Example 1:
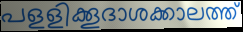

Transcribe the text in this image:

പളളിക്കൂദാശക്കാലത്ത്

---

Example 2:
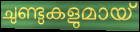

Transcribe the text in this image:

ചുണ്ടുകളുമായ്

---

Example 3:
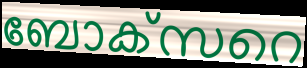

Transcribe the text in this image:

ബോക്‌സറെ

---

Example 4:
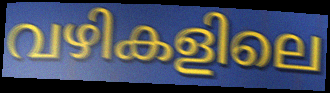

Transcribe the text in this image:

വഴികളിലെ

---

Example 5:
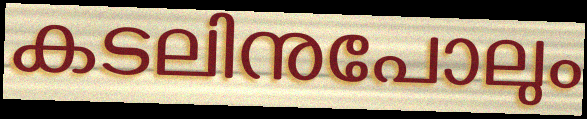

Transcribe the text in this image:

കടലിനുപോലും